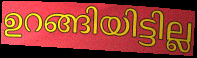
ഉറങ്ങിയിട്ടില്ല